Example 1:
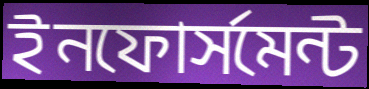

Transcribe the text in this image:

ইনফোর্সমেন্ট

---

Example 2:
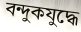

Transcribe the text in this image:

বন্দুকযুদ্ধে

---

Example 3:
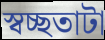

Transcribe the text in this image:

স্বচ্ছতাটা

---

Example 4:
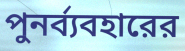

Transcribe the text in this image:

পুনর্ব্যবহারের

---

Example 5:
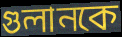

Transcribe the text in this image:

গুলানকে